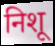
निशू